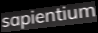
sapientium